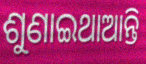
ଶୁଣାଇଥାଆନ୍ତି